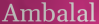
Ambalal